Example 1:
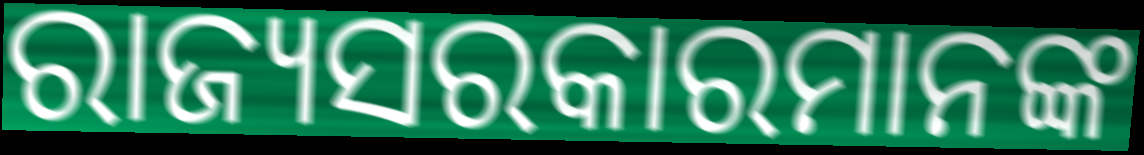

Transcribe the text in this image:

ରାଜ୍ୟସରକାରମାନଙ୍କ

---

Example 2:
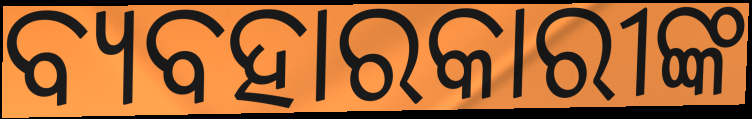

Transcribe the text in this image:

ବ୍ୟବହାରକାରୀଙ୍କ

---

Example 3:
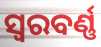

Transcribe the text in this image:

ସ୍ୱରବର୍ଣ୍ଣ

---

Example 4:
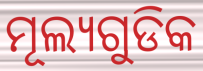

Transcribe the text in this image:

ମୂଲ୍ୟଗୁଡିକ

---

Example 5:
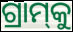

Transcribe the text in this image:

ଗ୍ରାମ୍‌କୁ